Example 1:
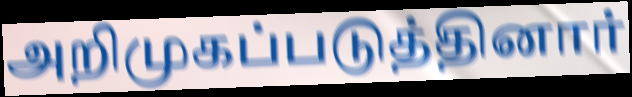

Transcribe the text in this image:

அறிமுகப்படுத்தினார்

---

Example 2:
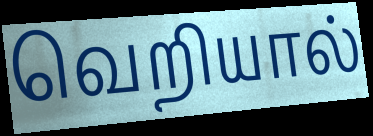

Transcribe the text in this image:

வெறியால்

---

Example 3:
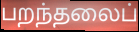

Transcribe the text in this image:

பறந்தலைப்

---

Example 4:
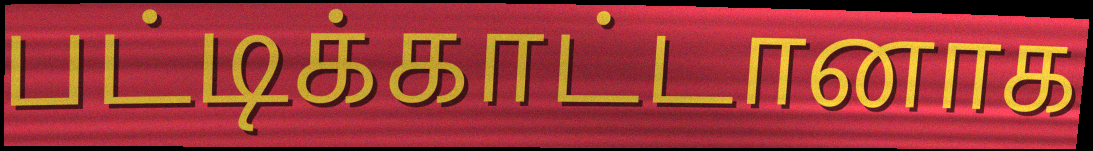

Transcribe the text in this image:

பட்டிக்காட்டானாக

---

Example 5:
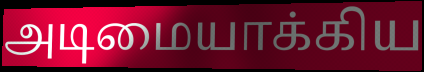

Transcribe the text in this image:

அடிமையாக்கிய